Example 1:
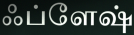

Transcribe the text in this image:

ஃப்ளேஷ்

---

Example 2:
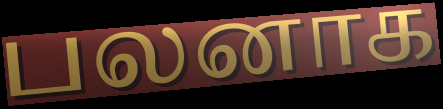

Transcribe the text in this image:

பலனாக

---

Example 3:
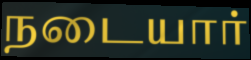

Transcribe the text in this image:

நடையார்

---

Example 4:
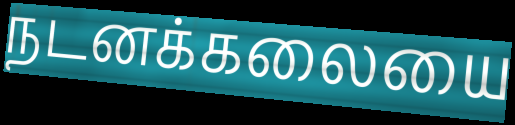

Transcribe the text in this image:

நடனக்கலையை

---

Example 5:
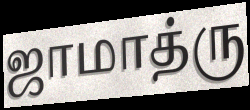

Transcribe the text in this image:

ஜாமாத்ரு